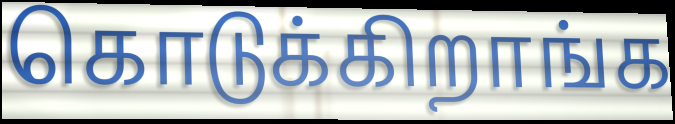
கொடுக்கிறாங்க